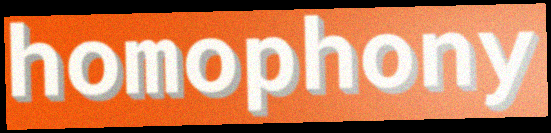
homophony